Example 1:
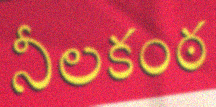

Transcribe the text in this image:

నీలకంఠ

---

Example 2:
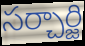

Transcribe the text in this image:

సర్చార్జి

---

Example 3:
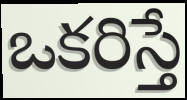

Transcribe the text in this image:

ఒకరిస్తే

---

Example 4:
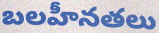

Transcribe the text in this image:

బలహీనతలు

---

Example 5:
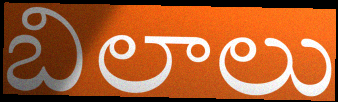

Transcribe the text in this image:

బిలాలు